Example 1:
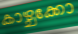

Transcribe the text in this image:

കാഴ്ചക്കോ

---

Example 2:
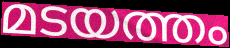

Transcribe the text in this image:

മടയത്തം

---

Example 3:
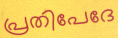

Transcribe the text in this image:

പ്രതിപേദേ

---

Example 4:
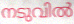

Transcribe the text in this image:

നടുവിൽ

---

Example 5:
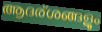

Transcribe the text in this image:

ആദര്ശങ്ങളും